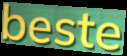
beste